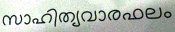
സാഹിത്യവാരഫലം